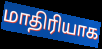
மாதிரியாக